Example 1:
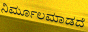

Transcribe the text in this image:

ನಿರ್ಮೂಲಮಾಡದೆ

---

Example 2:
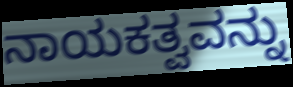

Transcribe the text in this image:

ನಾಯಕತ್ವವನ್ನು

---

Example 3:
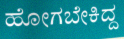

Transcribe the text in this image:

ಹೋಗಬೇಕಿದ್ದ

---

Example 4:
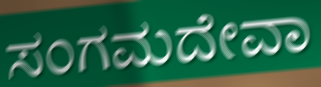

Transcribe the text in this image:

ಸಂಗಮದೇವಾ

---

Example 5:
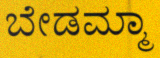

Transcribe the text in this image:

ಬೇಡಮ್ಮಾ